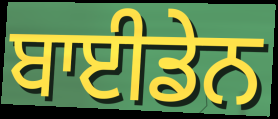
ਬਾਈਡੇਨ